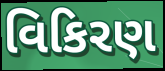
વિકિરણ